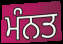
ਮੰਨਤ